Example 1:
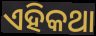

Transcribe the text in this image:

ଏହିକଥା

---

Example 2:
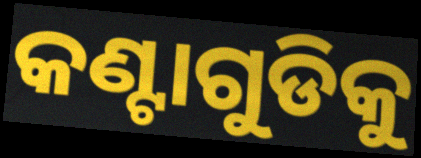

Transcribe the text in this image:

କଣ୍ଟାଗୁଡିକୁ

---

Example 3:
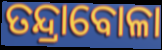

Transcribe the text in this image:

ତନ୍ଦ୍ରାବୋଳା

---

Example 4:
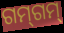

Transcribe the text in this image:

ଗମ୍‌ଗମ୍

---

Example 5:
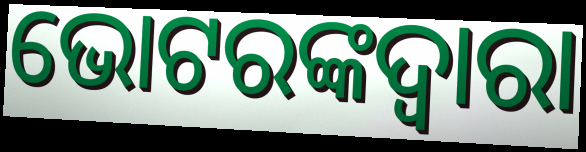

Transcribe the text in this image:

ଭୋଟରଙ୍କଦ୍ଵାରା